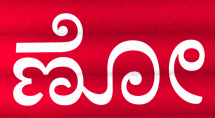
ಣೋ